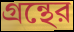
গ্রন্থের